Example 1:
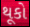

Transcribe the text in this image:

થૂકો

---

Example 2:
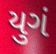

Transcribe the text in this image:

યુગં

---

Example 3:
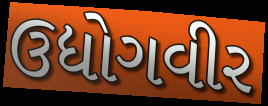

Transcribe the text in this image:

ઉદ્યોગવીર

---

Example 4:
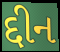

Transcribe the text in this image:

દ્દીન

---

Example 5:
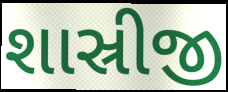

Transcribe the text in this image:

શાસ્રીજી